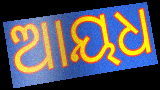
ଆୟଧ